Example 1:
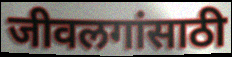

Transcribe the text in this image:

जीवलगांसाठी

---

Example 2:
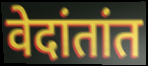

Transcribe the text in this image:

वेदांतांत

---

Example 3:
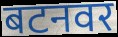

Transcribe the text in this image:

बटनवर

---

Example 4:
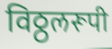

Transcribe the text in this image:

विठ्ठलरूपी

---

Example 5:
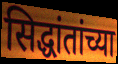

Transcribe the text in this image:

सिद्धांतांच्या